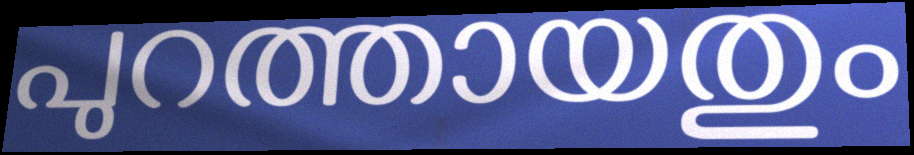
പുറത്തായതും